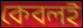
কেবলই